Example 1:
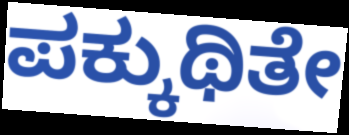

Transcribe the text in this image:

ಪಕ್ಕುಥಿತೇ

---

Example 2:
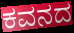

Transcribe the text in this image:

ಕವನದ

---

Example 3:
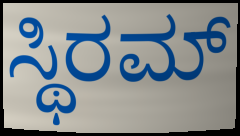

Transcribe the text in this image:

ಸ್ಥಿರಮ್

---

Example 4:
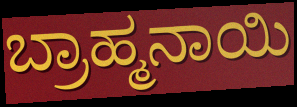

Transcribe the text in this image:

ಬ್ರಾಹ್ಮನಾಯಿ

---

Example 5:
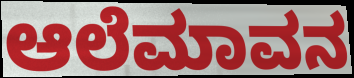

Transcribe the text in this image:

ಆಲೆಮಾವನ